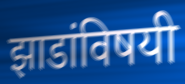
झाडांविषयी